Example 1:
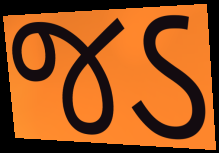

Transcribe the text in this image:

જડ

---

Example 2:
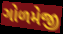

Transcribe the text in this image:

ગોળમેજી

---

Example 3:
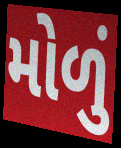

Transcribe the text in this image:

મોળું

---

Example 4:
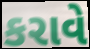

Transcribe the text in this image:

કરાવે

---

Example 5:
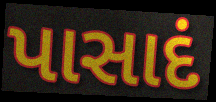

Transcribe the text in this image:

પાસાદં